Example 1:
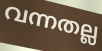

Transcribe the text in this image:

വന്നതല്ല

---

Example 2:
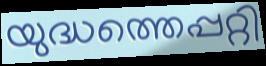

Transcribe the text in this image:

യുദ്ധത്തെപ്പറ്റി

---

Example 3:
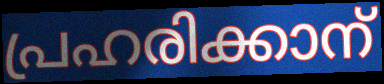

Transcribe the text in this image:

പ്രഹരിക്കാന്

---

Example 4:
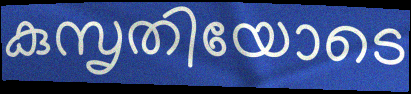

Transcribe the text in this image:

കുസൃതിയോടെ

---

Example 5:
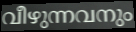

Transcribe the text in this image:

വീഴുന്നവനും